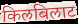
किलबिलाट